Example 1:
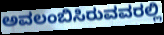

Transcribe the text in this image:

ಅವಲಂಬಿಸಿರುವವರಲ್ಲಿ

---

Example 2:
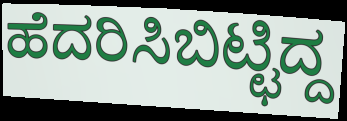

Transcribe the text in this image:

ಹೆದರಿಸಿಬಿಟ್ಟಿದ್ದ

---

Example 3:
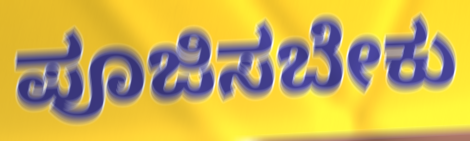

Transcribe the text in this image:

ಪೂಜಿಸಬೇಕು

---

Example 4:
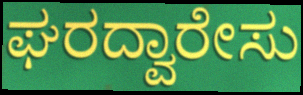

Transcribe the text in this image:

ಘರದ್ವಾರೇಸು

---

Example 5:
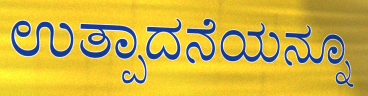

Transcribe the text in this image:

ಉತ್ಪಾದನೆಯನ್ನೂ